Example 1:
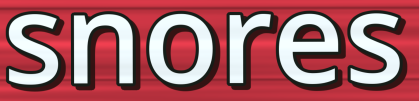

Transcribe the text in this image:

snores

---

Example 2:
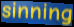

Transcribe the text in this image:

sinning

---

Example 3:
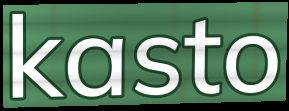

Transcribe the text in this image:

kasto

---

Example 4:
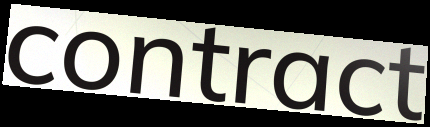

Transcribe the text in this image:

contract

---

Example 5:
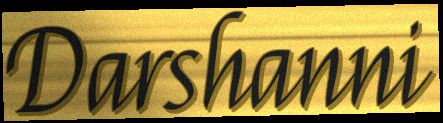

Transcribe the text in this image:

Darshanni